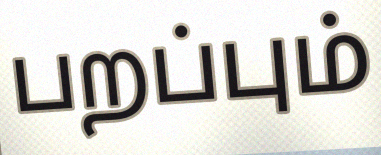
பறப்பும்